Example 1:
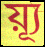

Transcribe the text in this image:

য়্যূ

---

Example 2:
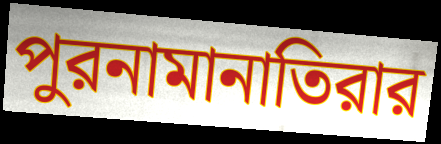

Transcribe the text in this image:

পুরনামানাতিরার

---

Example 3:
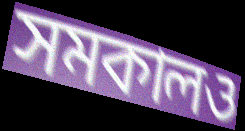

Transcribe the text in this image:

সমকালও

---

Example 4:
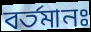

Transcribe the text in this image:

বর্তমানঃ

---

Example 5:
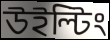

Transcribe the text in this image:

উইল্টিং